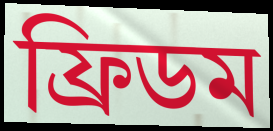
ফ্রিডম